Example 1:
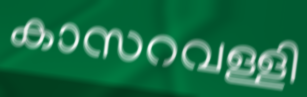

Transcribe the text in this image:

കാസറവള്ളി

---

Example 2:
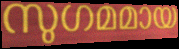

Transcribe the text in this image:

സുഗമമായ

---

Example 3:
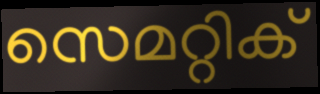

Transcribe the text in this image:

സെമറ്റിക്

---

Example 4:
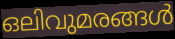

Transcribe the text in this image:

ഒലിവുമരങ്ങൾ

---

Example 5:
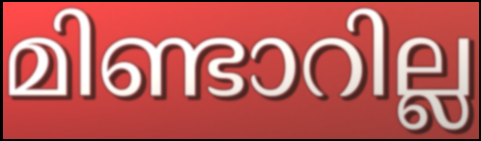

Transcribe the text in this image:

മിണ്ടാറില്ല